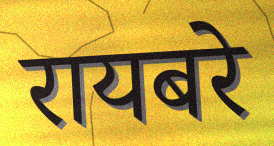
रायबरे